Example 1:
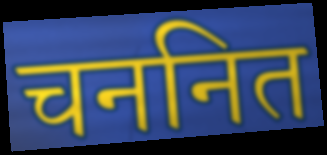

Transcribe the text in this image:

चननित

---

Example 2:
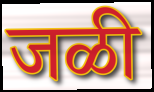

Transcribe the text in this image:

जळी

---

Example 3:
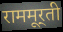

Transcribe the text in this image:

राममूर्ती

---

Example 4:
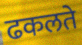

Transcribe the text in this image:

ढकलते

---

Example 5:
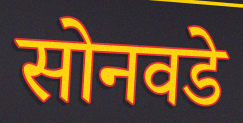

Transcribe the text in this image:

सोनवडे